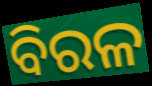
ବିରଳ